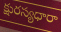
క్షురస్యధారా